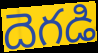
దెగడి